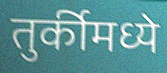
तुर्कीमध्ये